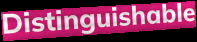
Distinguishable